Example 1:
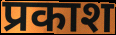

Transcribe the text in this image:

प्रकाश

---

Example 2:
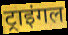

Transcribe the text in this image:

ट्राइंगल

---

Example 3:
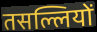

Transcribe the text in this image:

तसल्लियों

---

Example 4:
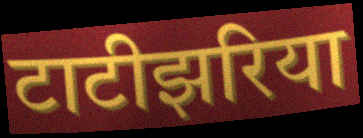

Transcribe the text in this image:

टाटीझरिया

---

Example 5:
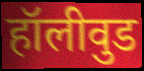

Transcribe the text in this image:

हॉलीवुड